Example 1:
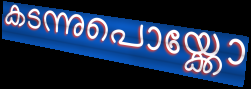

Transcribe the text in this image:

കടന്നുപൊയ്ക്കോ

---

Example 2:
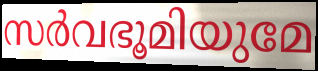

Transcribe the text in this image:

സർവഭൂമിയുമേ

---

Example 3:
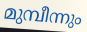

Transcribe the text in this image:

മുമ്പീന്നും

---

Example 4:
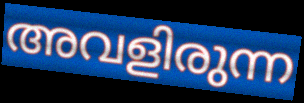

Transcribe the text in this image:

അവളിരുന്ന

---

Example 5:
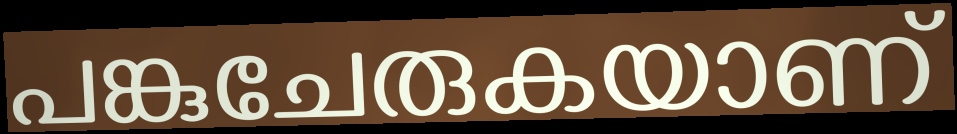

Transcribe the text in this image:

പങ്കുചേരുകയാണ്